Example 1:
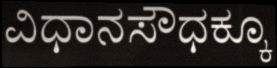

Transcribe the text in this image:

ವಿಧಾನಸೌಧಕ್ಕೂ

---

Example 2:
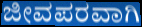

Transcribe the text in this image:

ಜೀವಪರವಾಗಿ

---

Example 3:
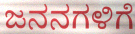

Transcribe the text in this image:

ಜನನಗಳಿಗೆ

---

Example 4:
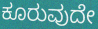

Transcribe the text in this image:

ಕೂರುವುದೇ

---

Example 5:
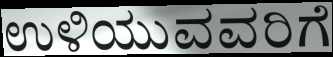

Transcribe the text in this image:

ಉಳಿಯುವವರಿಗೆ